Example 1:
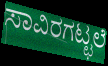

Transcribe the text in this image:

ಸಾವಿರಗಟ್ಟಲೆ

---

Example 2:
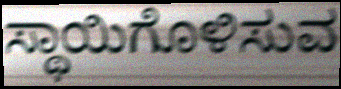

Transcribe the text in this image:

ಸ್ಥಾಯಿಗೊಳಿಸುವ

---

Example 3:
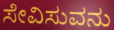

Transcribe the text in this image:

ಸೇವಿಸುವನು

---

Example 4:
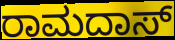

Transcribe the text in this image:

ರಾಮದಾಸ್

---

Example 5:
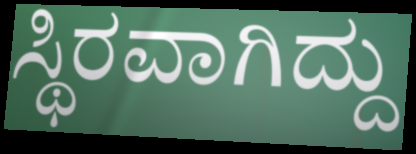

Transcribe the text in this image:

ಸ್ಥಿರವಾಗಿದ್ದು